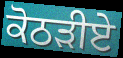
ਕੋਠੜੀਏ